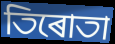
তিৰোতা